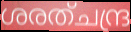
ശരത്ചന്ദ്ര